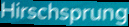
Hirschsprung